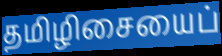
தமிழிசையைப்